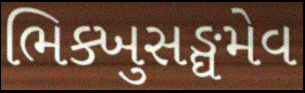
ભિક્ખુસઙ્ઘમેવ